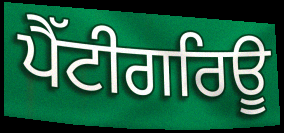
ਪੈੱਟੀਗਰਿਊ